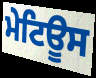
ਮੇਟਿਊਸ